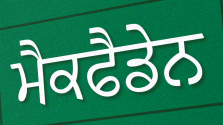
ਮੈਕਫੈਡੇਨ